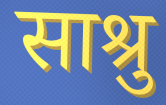
साश्रु